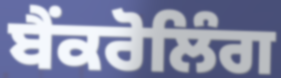
ਬੈਂਕਰੋਲਿੰਗ